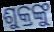
ଶୁକ୍ରଙ୍କୁ